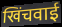
खिंचवाई